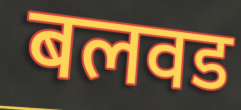
बलवड